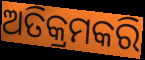
ଅତିକ୍ରମକରି